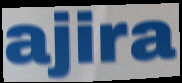
ajira